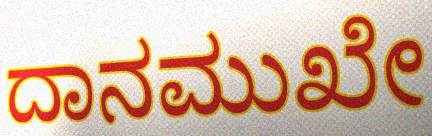
ದಾನಮುಖೇ